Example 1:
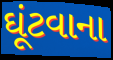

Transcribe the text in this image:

ઘૂંટવાના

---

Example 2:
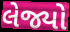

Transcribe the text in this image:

લેજ્યો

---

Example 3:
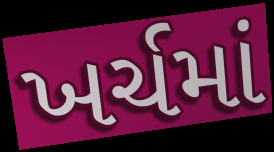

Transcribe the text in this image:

ખર્ચમાં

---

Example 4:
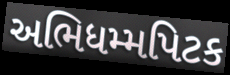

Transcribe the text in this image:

અભિધમ્મપિટક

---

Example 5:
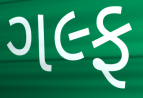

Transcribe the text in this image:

ગલ્ફ